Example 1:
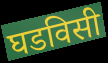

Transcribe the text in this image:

घडविसी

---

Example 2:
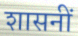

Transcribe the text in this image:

शासनीं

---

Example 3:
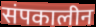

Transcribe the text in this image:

संपकालीन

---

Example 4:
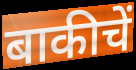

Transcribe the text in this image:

बाकीचें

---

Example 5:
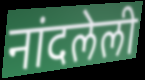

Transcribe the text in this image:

नांदलेली